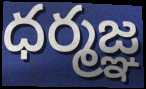
ధర్మజ్ఞ